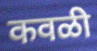
कवळी